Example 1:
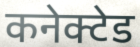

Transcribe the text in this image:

कनेक्टेड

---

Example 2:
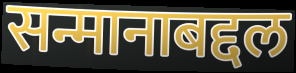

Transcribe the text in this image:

सन्मानाबद्दल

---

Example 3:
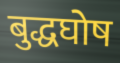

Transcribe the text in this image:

बुद्धघोष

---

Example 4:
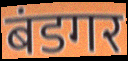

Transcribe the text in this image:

बंडगर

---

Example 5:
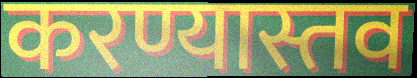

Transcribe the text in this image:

करण्यास्तव